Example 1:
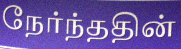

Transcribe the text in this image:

நேர்ந்ததின்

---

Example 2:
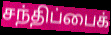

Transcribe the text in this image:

சந்திப்பைக்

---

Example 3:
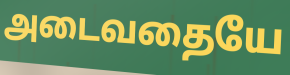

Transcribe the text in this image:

அடைவதையே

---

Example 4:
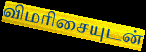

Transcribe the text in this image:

விமரிசையுடன்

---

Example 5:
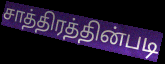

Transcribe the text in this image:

சாத்திரத்தின்படி